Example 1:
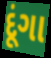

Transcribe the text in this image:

દૂંગા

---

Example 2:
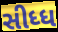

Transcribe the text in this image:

સીધ્ધ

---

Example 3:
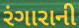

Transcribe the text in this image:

રંગારાની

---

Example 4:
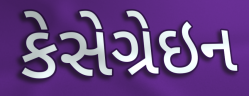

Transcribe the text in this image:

કેસેગ્રેઇન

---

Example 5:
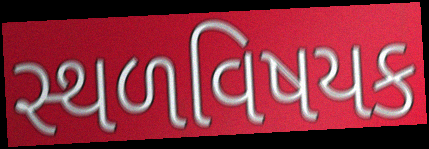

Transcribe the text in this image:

સ્થળવિષયક